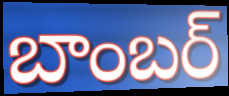
బాంబర్